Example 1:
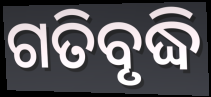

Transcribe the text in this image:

ଗତିବୃଦ୍ଧି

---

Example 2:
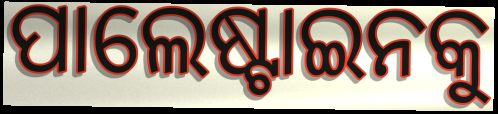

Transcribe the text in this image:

ପାଲେଷ୍ଟାଇନକୁ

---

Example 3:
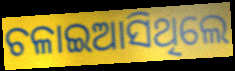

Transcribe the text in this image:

ଚଳାଇଆସିଥିଲେ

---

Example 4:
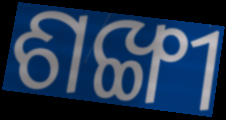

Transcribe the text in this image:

ଶଙ୍ଖୀ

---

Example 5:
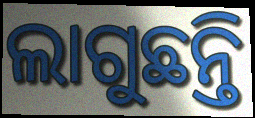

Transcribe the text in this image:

ଲାଗୁଛନ୍ତି